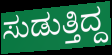
ಸುಡುತ್ತಿದ್ದ